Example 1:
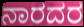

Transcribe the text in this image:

ನಾರದರ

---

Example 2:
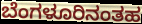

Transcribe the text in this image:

ಬೆಂಗಳೂರಿನಂತಹ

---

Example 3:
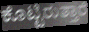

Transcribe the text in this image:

ಕೊಟ್ಟಿರುತ್ತಾರೆ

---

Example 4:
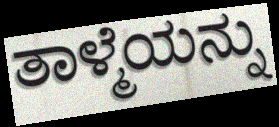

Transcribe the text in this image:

ತಾಳ್ಮೆಯನ್ನು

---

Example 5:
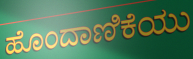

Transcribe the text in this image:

ಹೊಂದಾಣಿಕೆಯು